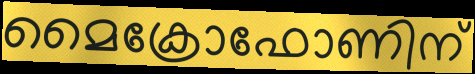
മൈക്രോഫോണിന്